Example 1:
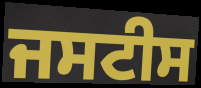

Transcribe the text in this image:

ਜਸਟੀਸ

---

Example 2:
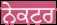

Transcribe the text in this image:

ਨੇਕਟਰ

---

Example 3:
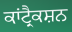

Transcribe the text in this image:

ਕਾਂਟ੍ਰੈਕਸ਼ਨ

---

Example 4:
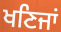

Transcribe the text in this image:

ਖਣਿਜਾਂ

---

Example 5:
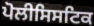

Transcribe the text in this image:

ਪੋਲੀਸਿਸਟਿਕ